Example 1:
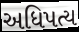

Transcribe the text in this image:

અધિપત્ય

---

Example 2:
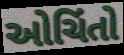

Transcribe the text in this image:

ઓચિંતો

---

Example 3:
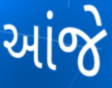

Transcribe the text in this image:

આંજે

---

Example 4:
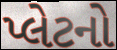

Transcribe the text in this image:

પ્લેટનો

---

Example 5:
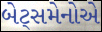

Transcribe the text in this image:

બેટ્સમેનોએ